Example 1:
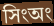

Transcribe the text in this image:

সিংঅং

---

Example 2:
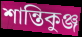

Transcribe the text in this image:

শান্তিকুঞ্জ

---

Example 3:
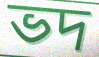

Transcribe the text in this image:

ভদ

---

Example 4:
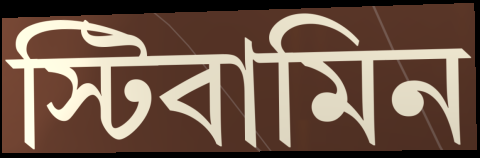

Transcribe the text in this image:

স্টিবামিন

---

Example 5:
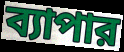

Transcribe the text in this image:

ব্যাপার